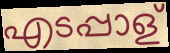
എടപ്പാള്